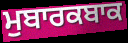
ਮੁਬਾਰਕਬਾਕ